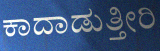
ಕಾದಾಡುತ್ತೀರಿ